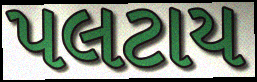
પલટાય